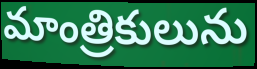
మాంత్రికులును